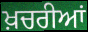
ਖ਼ਚਰੀਆਂ